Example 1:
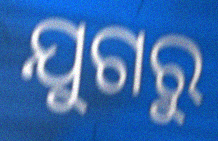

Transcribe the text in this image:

ଯୁଗରୁ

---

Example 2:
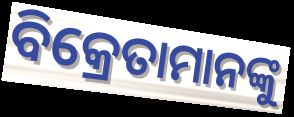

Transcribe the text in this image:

ବିକ୍ରେତାମାନଙ୍କୁ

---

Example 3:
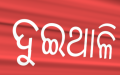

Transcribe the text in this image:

ଦୁଇଥାଳି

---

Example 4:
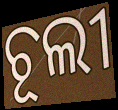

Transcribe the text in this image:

ଚୂଲୀ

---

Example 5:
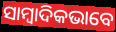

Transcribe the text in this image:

ସାମ୍ୱାଦିକଭାବେ